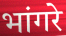
भांगरे